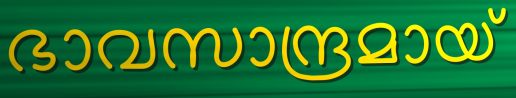
ഭാവസാന്ദ്രമായ്